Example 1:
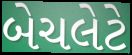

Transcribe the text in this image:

બેચલેટે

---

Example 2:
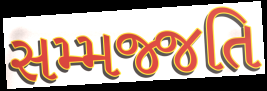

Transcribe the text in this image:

સમ્મજ્જતિ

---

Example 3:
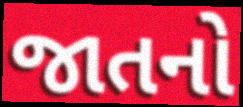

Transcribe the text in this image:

જાતનો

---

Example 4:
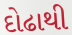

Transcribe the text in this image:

દોઢાથી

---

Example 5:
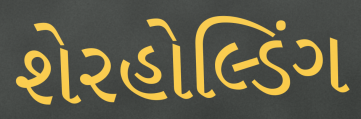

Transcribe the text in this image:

શેરહોલ્ડિંગ